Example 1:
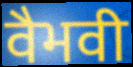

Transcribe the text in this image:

वैभवी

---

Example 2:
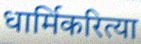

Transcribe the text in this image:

धार्मिकरित्या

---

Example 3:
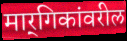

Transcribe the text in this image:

मार्गिकांवरील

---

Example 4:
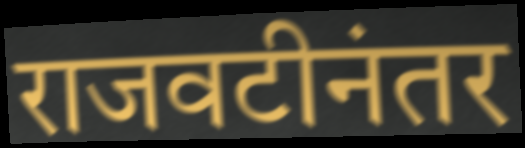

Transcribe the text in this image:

राजवटीनंतर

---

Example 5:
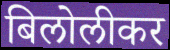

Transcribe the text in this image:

बिलोलीकर